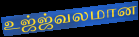
உஜ்ஜ்வலமான